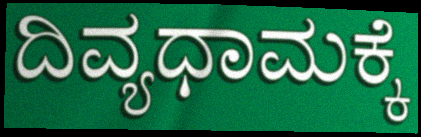
ದಿವ್ಯಧಾಮಕ್ಕೆ